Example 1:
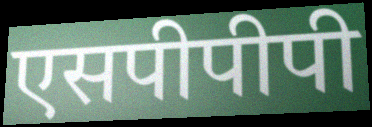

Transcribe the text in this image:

एसपीपीपी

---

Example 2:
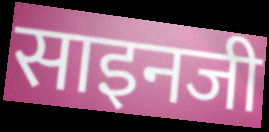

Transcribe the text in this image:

साइनजी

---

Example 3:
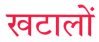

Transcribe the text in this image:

खटालों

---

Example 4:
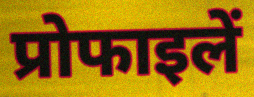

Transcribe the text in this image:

प्रोफाइलें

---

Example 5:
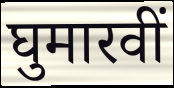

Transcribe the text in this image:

घुमारवीं